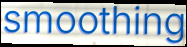
smoothing